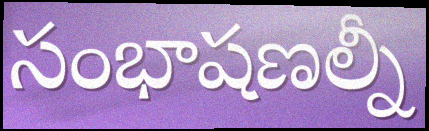
సంభాషణల్నీ